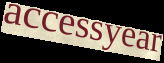
accessyear